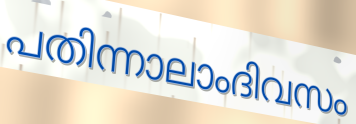
പതിന്നാലാംദിവസം